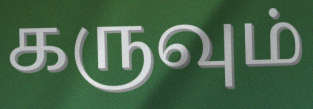
கருவும்